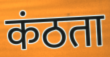
कंठता